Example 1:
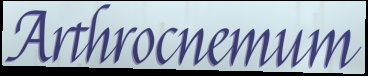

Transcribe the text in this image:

Arthrocnemum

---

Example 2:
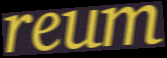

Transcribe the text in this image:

reum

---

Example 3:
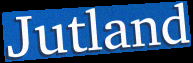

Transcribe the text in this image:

Jutland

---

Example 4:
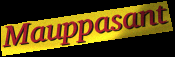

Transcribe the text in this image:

Mauppasant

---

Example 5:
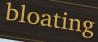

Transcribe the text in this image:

bloating